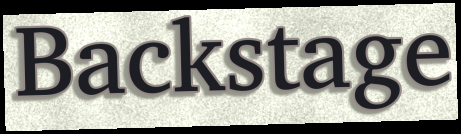
Backstage